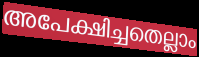
അപേക്ഷിച്ചതെല്ലാം